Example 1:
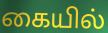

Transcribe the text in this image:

கையில்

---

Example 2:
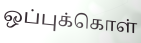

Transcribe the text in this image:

ஒப்புக்கொள்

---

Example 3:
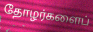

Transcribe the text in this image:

தோழர்களைப்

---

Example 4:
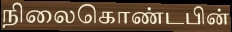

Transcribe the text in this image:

நிலைகொண்டபின்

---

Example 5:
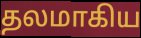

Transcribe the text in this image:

தலமாகிய